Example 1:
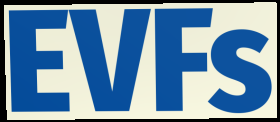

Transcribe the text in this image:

EVFs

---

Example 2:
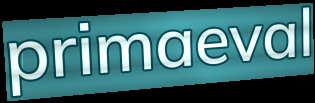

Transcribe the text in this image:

primaeval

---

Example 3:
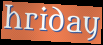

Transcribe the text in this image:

hriday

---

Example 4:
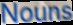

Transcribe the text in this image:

Nouns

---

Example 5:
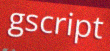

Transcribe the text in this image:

gscript